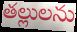
తల్లులను